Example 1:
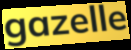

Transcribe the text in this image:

gazelle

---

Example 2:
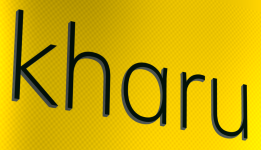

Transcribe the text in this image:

kharu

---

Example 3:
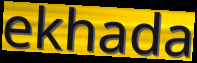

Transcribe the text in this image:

ekhada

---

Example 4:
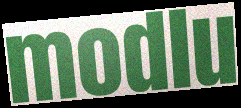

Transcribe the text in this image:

modlu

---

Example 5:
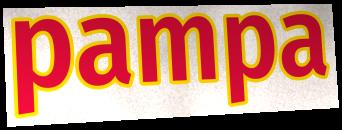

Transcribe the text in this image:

pampa